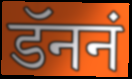
डॅननं